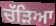
ਚੱੜਿਆ